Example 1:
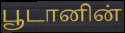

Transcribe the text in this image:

பூடானின்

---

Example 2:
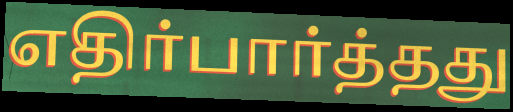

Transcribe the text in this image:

எதிர்பார்த்தது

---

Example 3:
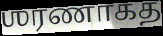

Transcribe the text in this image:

ஶரணாகத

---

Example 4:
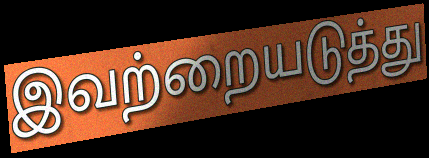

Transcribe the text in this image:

இவற்றையடுத்து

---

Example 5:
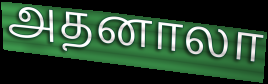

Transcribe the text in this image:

அதனாலா